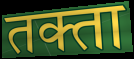
तक्ता